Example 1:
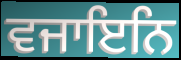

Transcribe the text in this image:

ਵਜਾਇਨਿ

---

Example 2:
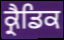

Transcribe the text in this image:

ਕ੍ਰੈਡਿਕ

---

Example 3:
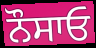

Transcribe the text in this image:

ਨੌਸਾਓ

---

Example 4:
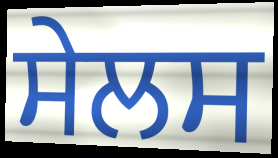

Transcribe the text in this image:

ਸੇਲਸ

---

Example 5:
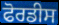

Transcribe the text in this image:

ਫੋਰਡੀਸ